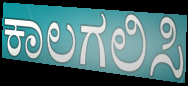
ಕಾಲಗಲಿಸಿ